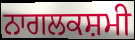
ਨਾਗਲਕਸ਼ਮੀ